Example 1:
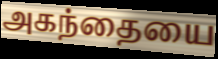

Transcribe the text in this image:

அகந்தையை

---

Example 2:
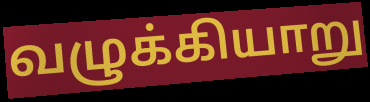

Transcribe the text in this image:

வழுக்கியாறு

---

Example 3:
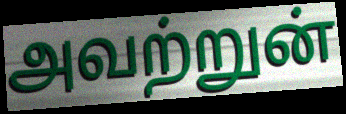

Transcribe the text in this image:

அவற்றுன்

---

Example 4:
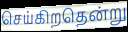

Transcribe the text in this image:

செய்கிறதென்று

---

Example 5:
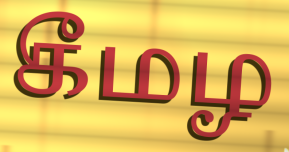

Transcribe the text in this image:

கீமழ